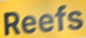
Reefs